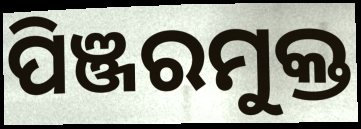
ପିଞ୍ଜରମୁକ୍ତ